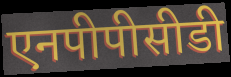
एनपीपीसीडी